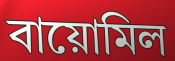
বায়োমিল